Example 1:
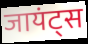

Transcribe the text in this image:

जायंट्स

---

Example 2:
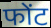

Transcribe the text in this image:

फोंट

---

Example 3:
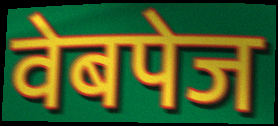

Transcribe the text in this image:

वेबपेज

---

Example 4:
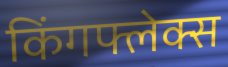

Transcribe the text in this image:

किंगफ्लेक्स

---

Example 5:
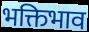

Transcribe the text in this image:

भक्तिभाव